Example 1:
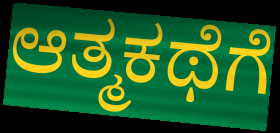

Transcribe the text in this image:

ಆತ್ಮಕಥೆಗೆ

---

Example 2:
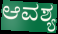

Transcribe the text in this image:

ಆವಶ್ಯ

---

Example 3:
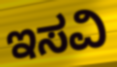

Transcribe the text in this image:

ಇಸವಿ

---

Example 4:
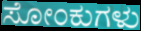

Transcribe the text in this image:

ಸೋಂಕುಗಳು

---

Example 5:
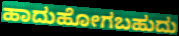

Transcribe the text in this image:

ಹಾದುಹೋಗಬಹುದು